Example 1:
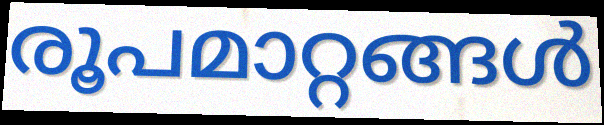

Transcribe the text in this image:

രൂപമാറ്റങ്ങൾ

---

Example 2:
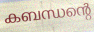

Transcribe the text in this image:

കബന്ധന്റെ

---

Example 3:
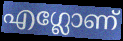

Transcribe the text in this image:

എഗ്ലോണ്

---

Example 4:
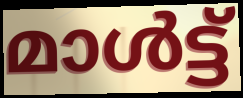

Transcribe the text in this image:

മാൾട്ട്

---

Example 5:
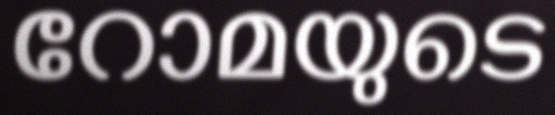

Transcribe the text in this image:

റോമയുടെ